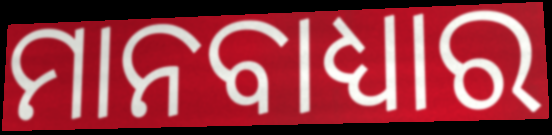
ମାନବାଧ୍ୟାର